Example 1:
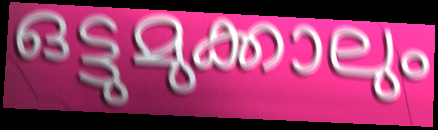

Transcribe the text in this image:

ഒട്ടുമുക്കാലും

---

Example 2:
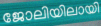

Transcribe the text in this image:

ജോലിയിലായി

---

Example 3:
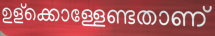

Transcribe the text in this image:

ഉള്ക്കൊള്ളേണ്ടതാണ്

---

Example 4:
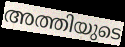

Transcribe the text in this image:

അത്തിയുടെ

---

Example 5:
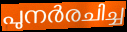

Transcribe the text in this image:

പുനർരചിച്ച